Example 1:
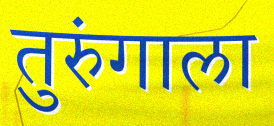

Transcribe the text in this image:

तुरुंगाला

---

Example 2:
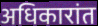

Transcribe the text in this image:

अधिकारांत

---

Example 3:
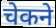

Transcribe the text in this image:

चेकने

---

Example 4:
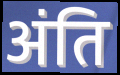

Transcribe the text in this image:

अंति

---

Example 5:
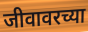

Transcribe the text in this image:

जीवावरच्या